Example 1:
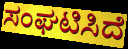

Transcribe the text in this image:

ಸಂಘಟಿಸಿದೆ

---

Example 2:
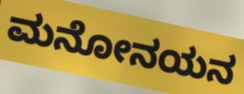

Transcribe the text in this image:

ಮನೋನಯನ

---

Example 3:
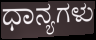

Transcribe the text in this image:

ಧಾನ್ಯಗಳು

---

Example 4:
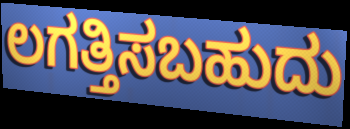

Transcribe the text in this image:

ಲಗತ್ತಿಸಬಹುದು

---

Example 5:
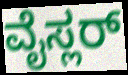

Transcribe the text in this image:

ವೈಸ್ಲರ್